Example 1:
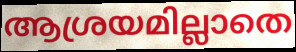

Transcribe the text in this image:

ആശ്രയമില്ലാതെ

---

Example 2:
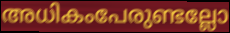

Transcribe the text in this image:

അധികംപേരുണ്ടല്ലോ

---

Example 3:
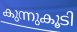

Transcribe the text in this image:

കുന്നുകൂടി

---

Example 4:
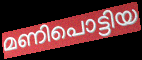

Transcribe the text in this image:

മണിപൊട്ടിയ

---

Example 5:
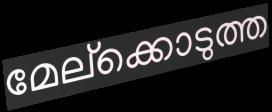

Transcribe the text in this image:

മേല്ക്കൊടുത്ത